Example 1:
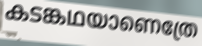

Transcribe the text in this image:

കടങ്കഥയാണെത്രേ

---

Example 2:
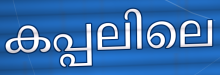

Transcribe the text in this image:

കപ്പലിലെ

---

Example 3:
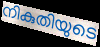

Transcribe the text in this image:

നികുതിയുടെ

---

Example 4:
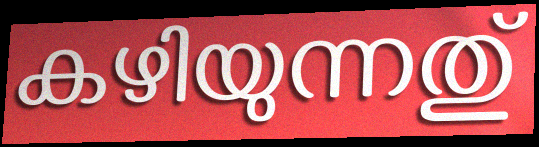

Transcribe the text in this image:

കഴിയുന്നതു്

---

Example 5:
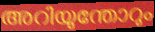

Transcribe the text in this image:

അറിയുന്തോറും